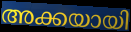
അക്കയായി